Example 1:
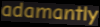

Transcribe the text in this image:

adamantly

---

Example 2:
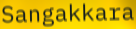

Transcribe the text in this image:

Sangakkara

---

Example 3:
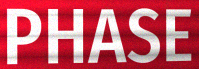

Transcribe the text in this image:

PHASE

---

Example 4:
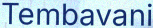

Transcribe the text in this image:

Tembavani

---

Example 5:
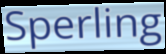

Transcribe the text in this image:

Sperling